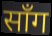
साँग